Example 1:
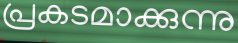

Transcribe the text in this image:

പ്രകടമാക്കുന്നു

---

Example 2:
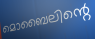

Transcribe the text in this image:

മൊബൈലിന്റെ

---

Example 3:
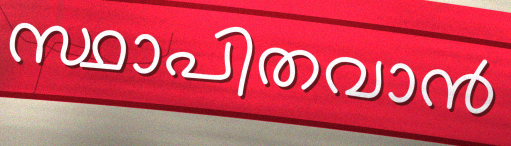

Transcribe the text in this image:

സ്ഥാപിതവാൻ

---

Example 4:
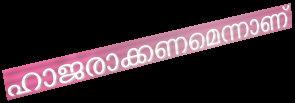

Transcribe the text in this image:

ഹാജരാക്കണമെന്നാണ്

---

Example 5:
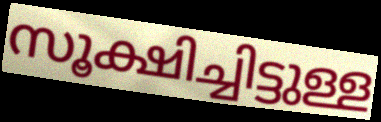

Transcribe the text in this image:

സൂക്ഷിച്ചിട്ടുള്ള